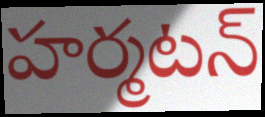
హర్మటన్